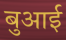
बुआई